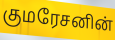
குமரேசனின்